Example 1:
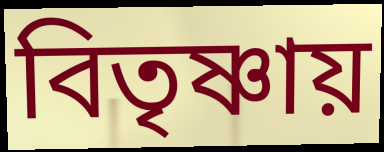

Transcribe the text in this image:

বিতৃষ্ণায়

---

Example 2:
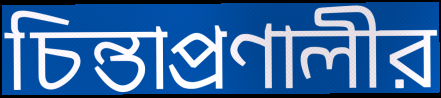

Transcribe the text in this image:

চিন্তাপ্রণালীর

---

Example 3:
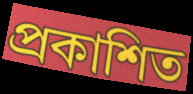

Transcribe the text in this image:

প্রকাশিত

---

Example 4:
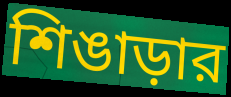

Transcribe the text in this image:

শিঙাড়ার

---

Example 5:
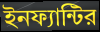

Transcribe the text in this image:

ইনফ্যান্টির